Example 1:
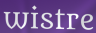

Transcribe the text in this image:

wistre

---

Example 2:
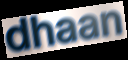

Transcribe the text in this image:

dhaan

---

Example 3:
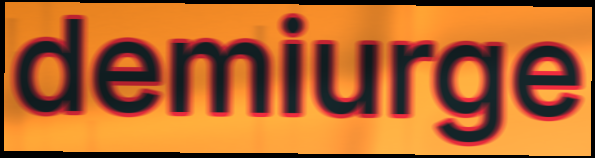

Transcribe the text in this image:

demiurge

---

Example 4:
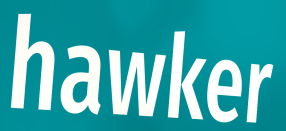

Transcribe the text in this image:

hawker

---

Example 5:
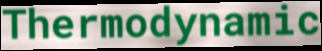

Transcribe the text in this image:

Thermodynamic